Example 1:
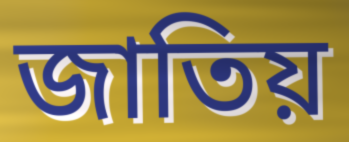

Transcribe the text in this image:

জাতিয়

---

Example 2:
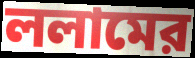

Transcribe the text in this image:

ললামের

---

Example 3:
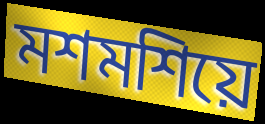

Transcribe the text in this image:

মশমশিয়ে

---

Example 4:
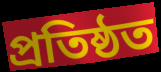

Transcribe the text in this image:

প্রতিষ্ঠত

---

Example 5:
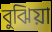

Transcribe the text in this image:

বুঝিয়া